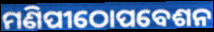
ମଣିପୀଠୋପବେଶନ